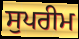
ਸੁਪਰੀਮ